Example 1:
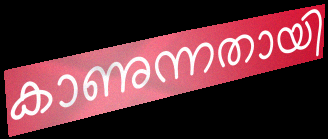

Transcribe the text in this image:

കാണുന്നതായി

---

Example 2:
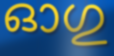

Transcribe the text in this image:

ഓഗു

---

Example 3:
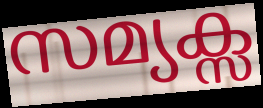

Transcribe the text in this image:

സമ്യക്സ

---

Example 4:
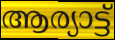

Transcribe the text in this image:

ആര്യാട്ട്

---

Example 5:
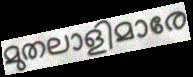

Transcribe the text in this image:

മുതലാളിമാരേ